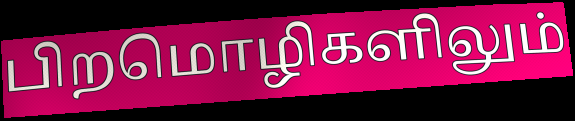
பிறமொழிகளிலும்